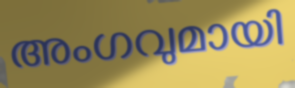
അംഗവുമായി